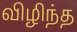
விழிந்த